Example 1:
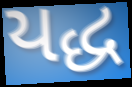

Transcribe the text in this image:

યદ્ધ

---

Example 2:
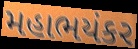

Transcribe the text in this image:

મહાભયંકર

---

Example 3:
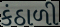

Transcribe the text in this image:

કંઠાળી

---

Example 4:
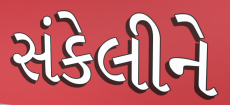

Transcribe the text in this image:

સંકેલીને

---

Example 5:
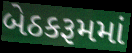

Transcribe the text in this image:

બેઠકરૂમમાં